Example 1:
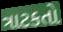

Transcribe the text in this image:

ત્રાટકતો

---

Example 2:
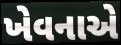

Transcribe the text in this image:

ખેવનાએ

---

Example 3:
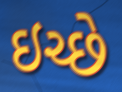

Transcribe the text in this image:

ઇચ્છે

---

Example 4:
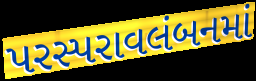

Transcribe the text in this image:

પરસ્પરાવલંબનમાં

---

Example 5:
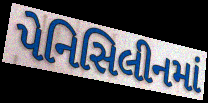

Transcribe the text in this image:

પેનિસિલીનમાં